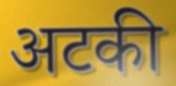
अटकी